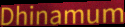
Dhinamum